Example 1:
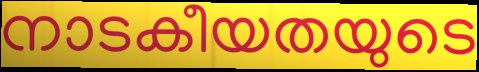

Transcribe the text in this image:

നാടകീയതയുടെ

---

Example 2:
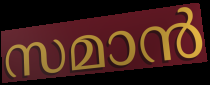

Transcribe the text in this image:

സമാൻ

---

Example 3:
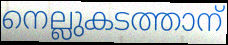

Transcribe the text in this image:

നെല്ലുകടത്താന്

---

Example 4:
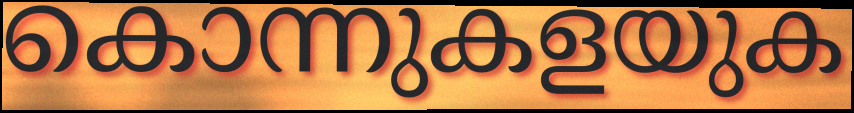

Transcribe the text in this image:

കൊന്നുകളയുക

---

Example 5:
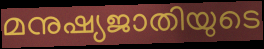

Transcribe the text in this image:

മനുഷ്യജാതിയുടെ